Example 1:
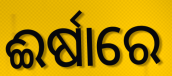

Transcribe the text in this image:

ଈର୍ଷାରେ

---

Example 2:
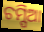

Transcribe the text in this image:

ଚମ୍ପିଆ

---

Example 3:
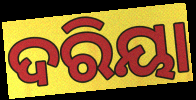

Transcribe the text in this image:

ଦରିୟା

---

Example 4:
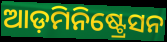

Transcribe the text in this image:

ଆଡ଼ମିନିଷ୍ଟ୍ରେସନ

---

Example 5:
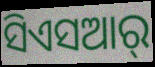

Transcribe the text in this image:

ସିଏସଆର୍